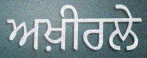
ਅਖ਼ੀਰਲੇ